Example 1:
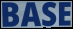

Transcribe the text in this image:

BASE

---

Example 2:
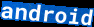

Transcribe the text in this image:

android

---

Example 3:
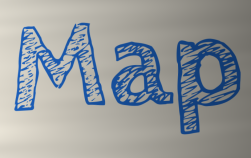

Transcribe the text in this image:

Map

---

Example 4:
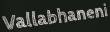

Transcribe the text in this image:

Vallabhaneni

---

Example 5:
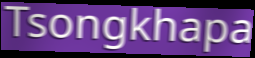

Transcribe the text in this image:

Tsongkhapa